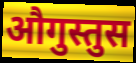
औगुस्तुस